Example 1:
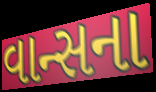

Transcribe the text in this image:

વાન્સના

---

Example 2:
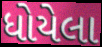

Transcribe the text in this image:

ધોયેલા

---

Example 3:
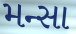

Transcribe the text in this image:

મન્સા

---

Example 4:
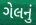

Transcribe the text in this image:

ગેલનું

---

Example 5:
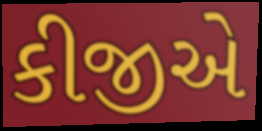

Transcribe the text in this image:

કીજીએ